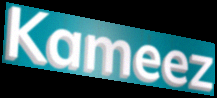
Kameez